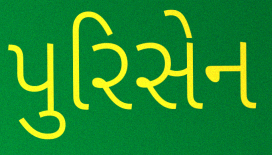
પુરિસેન